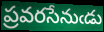
ప్రవరసేనుఁడు